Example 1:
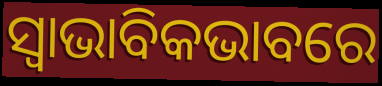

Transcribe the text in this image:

ସ୍ୱାଭାବିକଭାବରେ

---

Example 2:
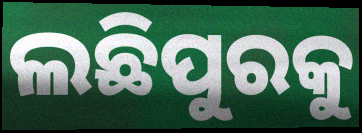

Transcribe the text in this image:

ଲଛିପୁରକୁ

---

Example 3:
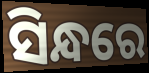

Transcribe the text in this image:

ସିନ୍ଧରେ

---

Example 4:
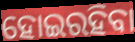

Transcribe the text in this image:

ହୋଇରହିବା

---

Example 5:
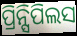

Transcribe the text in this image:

ପ୍ରିନ୍ସିପିଲସ